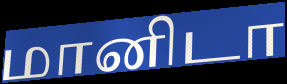
மானிடா